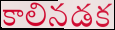
కాలినడక